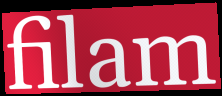
filam